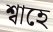
শ্বাহে